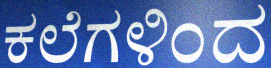
ಕಲೆಗಳಿಂದ